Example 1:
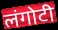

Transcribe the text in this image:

लंगोटी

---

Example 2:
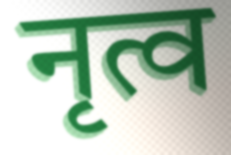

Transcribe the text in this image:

नृत्व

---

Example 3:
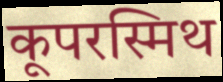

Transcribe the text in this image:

कूपरस्मिथ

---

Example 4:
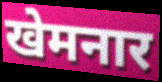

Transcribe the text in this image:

खेमनार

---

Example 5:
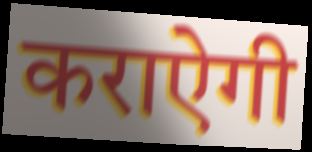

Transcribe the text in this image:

कराऐगी